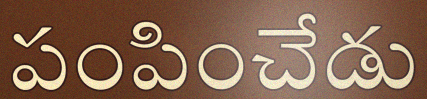
పంపించేడు